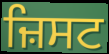
ਜ਼ਿਸਟ